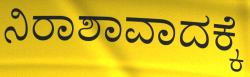
ನಿರಾಶಾವಾದಕ್ಕೆ